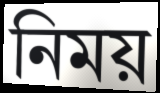
নিময়